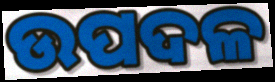
ଉପଦଳ